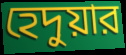
হেদুয়ার